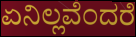
ಏನಿಲ್ಲವೆಂದರೆ